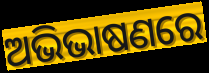
ଅଭିଭାଷଣରେ